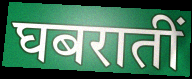
घबरातीं